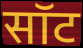
सॉट